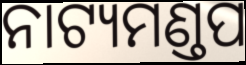
ନାଟ୍ୟମଣ୍ଡପ